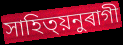
সাহিত্য়নুৰাগী